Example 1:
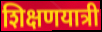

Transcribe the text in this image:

शिक्षणयात्री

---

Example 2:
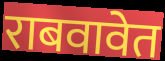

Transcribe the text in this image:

राबवावेत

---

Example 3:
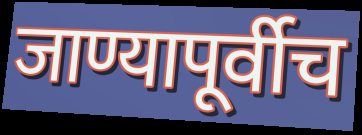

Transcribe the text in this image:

जाण्यापूर्वीच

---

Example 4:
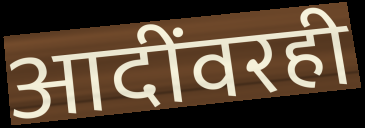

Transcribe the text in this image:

आदींवरही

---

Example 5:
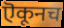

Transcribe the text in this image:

ऎकूनच